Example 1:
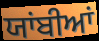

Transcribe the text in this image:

ਯਾਂਬੀਆਂ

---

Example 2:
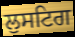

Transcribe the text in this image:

ਲੁਸਟਿਗ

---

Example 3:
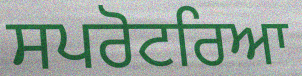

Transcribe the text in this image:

ਸਪਰੋਟਰਿਆ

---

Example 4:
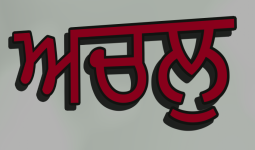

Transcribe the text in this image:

ਅਚਲੁ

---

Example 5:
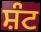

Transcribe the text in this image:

ਸ਼ੰਟ